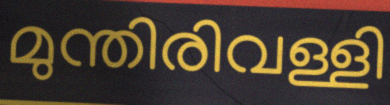
മുന്തിരിവള്ളി